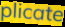
plicate